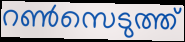
റൺസെടുത്ത്